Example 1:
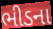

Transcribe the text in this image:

ભીડના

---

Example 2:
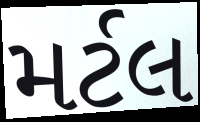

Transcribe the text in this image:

મર્ટલ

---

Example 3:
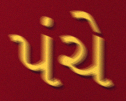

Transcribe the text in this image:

પંચે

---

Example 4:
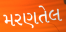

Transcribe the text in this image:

મરણતેલ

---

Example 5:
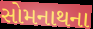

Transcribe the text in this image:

સોમનાથના